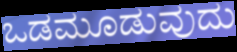
ಒಡಮೂಡುವುದು